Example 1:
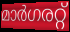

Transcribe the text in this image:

മാർഗരറ്റ്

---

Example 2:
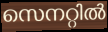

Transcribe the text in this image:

സെനറ്റിൽ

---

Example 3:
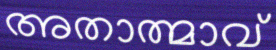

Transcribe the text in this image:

അതാത്മാവ്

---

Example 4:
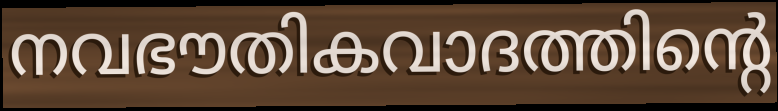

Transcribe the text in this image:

നവഭൗതികവാദത്തിന്റെ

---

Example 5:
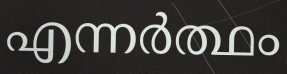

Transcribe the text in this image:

എന്നർത്ഥം